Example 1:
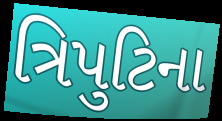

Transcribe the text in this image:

ત્રિપુટિના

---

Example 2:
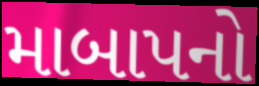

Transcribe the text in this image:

માબાપનો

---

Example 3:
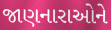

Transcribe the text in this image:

જાણનારાઓને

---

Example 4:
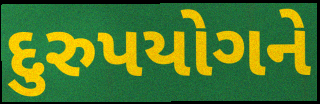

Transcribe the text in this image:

દુરુપયોગને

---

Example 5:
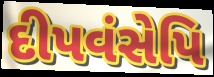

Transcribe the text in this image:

દીપવંસેપિ